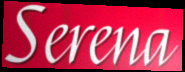
Serena